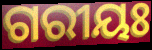
ଗରୀୟଃ